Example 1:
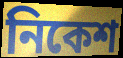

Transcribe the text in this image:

নিকেশ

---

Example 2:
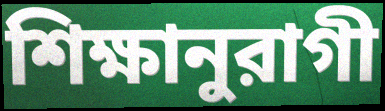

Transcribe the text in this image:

শিক্ষানুরাগী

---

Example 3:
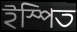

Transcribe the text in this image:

ইস্পিত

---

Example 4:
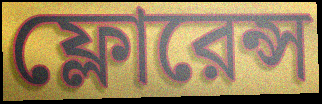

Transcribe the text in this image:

ফ্লোরেন্স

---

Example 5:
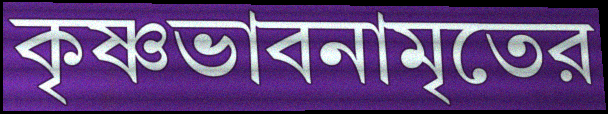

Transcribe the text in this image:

কৃষ্ণভাবনামৃতের